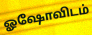
ஓஷோவிடம்